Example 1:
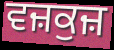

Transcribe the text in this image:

ਵਜ਼ਕੁਜ਼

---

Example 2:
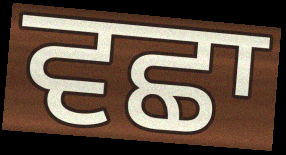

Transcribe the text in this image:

ਵਛਾ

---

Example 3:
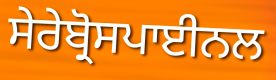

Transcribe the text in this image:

ਸੇਰੇਬ੍ਰੋਸਪਾਈਨਲ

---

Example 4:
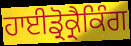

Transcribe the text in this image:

ਹਾਈਡ੍ਰੋਕ੍ਰੈਕਿੰਗ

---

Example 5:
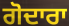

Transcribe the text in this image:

ਗੋਦਾਰਾ